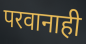
परवानाही